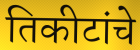
तिकीटांचे